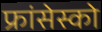
फ्रांसेस्को